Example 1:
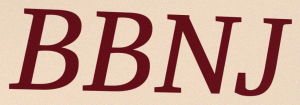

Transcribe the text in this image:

BBNJ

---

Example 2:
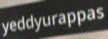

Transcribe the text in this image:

yeddyurappas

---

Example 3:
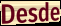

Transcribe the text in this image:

Desde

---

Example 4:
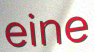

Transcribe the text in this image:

eine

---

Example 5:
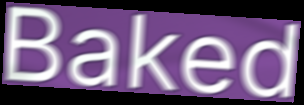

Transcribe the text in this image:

Baked